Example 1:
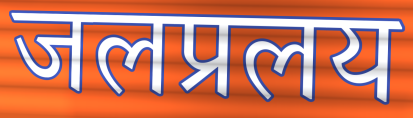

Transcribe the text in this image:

जलप्रलय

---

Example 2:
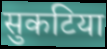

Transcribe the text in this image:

सुकटिया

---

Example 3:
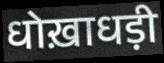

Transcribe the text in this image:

धोख़ाधड़ी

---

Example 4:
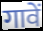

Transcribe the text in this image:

गावें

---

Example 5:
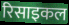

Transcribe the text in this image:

रिसाइकल